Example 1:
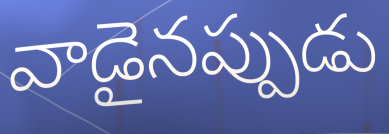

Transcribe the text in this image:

వాడైనప్పుడు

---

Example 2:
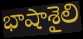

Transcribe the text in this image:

భాషాశైలి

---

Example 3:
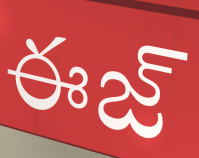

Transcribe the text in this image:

ఈజ్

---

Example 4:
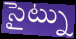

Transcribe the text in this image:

సైట్ను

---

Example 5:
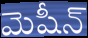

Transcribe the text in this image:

మెషీన్